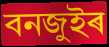
বনজুইৰ